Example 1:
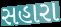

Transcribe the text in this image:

સહારા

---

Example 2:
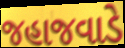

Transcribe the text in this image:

જહાજવાડે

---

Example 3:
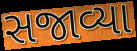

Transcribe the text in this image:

સજાવ્યા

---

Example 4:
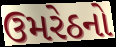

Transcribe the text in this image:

ઉમરેઠનો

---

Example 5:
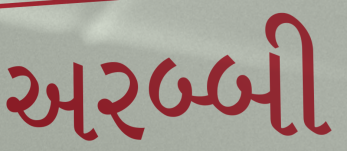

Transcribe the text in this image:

અરબ્બી